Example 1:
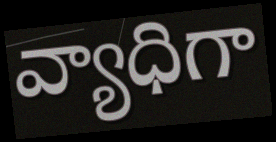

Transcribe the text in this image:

వ్యాధిగా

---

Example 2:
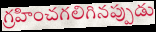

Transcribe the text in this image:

గ్రహించగలిగినప్పుడు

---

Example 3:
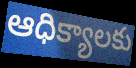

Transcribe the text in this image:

ఆధిక్యాలకు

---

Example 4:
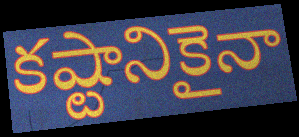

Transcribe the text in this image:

కష్టానికైనా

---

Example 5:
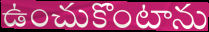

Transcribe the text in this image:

ఉంచుకొంటాను